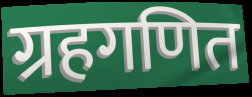
ग्रहगणित